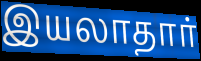
இயலாதார்